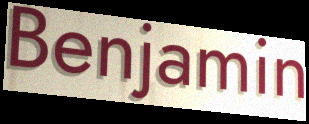
Benjamin